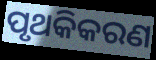
ପୃଥକିକରଣ